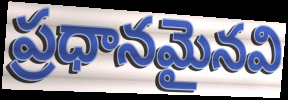
ప్రధానమైనవి